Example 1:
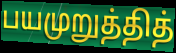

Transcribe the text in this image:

பயமுறுத்தித்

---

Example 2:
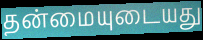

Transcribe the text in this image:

தன்மையுடையது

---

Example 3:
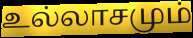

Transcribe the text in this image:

உல்லாசமும்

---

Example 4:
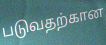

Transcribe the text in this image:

படுவதற்கான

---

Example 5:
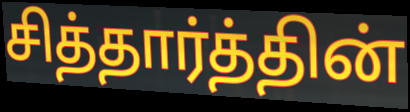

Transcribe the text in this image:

சித்தார்த்தின்